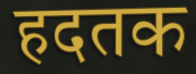
हदतक